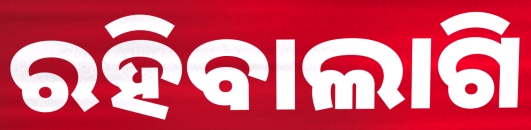
ରହିବାଲାଗି